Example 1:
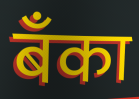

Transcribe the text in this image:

बॅंका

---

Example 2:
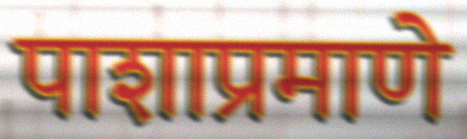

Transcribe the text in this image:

पाशाप्रमाणे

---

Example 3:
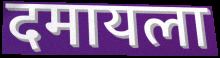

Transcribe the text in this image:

दमायला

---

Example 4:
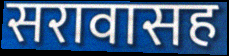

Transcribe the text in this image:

सरावासह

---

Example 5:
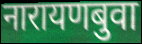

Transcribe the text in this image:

नारायणबुवा